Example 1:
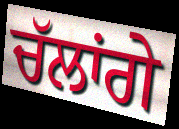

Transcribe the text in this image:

ਚੱਲਾਂਗੇ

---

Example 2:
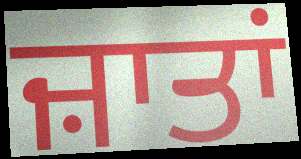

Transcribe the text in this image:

ਜ਼ਾਤਾਂ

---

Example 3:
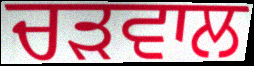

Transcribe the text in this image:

ਚੜਵਾਲ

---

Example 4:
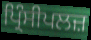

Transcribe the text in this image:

ਪ੍ਰਿੰਸੀਪਲਜ਼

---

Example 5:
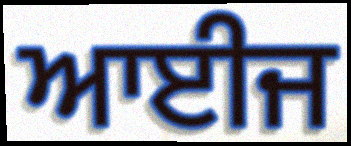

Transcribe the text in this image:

ਆਈਜ